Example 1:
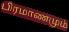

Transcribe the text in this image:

பிரமாணமும்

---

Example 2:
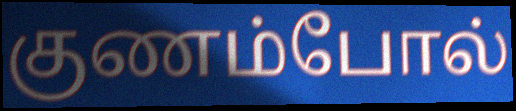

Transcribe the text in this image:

குணம்போல்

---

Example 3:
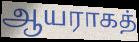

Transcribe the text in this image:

ஆயராகத்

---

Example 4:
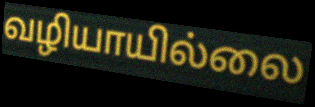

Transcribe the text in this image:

வழியாயில்லை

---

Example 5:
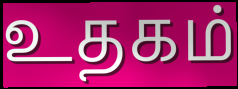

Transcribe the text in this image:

உதகம்